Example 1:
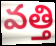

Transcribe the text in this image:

వత్తి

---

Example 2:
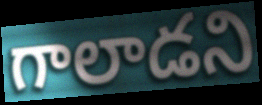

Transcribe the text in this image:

గాలాడని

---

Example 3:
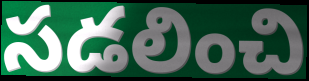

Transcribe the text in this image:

సడలించి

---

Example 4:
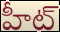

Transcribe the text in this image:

హీట్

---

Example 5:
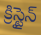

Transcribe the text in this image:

క్రిస్టైన్